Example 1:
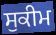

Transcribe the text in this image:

ਸੁਕੀਮ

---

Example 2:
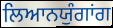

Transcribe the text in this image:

ਲਿਆਨਯੁੰਗਾਂਗ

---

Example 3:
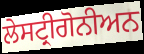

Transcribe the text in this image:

ਲੇਸਟ੍ਰੀਗੋਨੀਅਨ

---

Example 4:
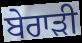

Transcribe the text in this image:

ਬੇਰਾੜੀ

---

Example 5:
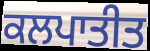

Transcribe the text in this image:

ਕਲਪਾਤੀਤ